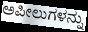
ಅಪೀಲುಗಳನ್ನು